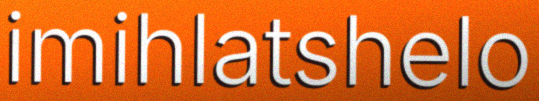
imihlatshelo